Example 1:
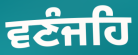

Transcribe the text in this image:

ਵਣੰਜਹਿ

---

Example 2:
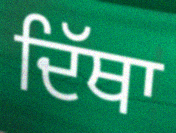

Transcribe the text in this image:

ਦਿੱਥਾ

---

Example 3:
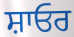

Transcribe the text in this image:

ਸ਼ਾਓਰ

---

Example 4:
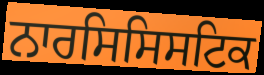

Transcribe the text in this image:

ਨਾਰਸਿਸਿਸਟਿਕ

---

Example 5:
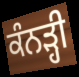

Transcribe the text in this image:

ਕੰਨੜ੍ਹੀ